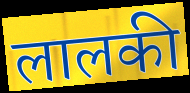
लालकी